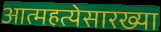
आत्महत्येसारख्या